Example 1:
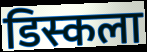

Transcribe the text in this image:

डिस्कला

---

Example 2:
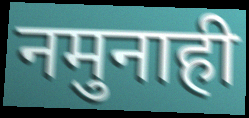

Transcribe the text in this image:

नमुनाही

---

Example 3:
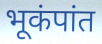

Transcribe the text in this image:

भूकंपांत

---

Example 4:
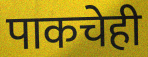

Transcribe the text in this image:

पाकचेही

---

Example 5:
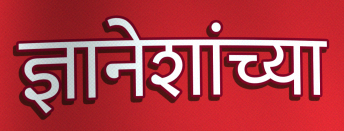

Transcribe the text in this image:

ज्ञानेशांच्या